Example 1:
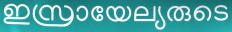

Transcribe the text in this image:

ഇസ്രായേല്യരുടെ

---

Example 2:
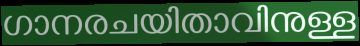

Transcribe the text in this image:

ഗാനരചയിതാവിനുള്ള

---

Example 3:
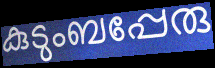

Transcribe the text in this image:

കുടുംബപ്പേരു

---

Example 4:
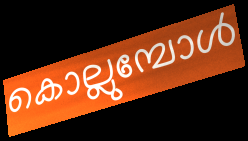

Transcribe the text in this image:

കൊല്ലുമ്പോൾ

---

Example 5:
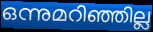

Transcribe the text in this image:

ഒന്നുമറിഞ്ഞില്ല